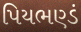
પિયભણ્ડં